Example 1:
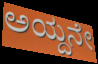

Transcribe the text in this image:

ಅಯ್ದನೇ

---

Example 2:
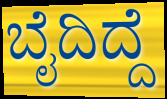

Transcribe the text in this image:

ಬೈದಿದ್ದೆ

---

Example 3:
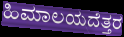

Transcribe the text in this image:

ಹಿಮಾಲಯದೆತ್ತರ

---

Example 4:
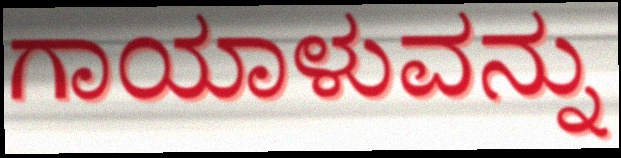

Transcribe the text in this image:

ಗಾಯಾಳುವನ್ನು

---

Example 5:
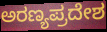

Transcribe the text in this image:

ಅರಣ್ಯಪ್ರದೇಶ